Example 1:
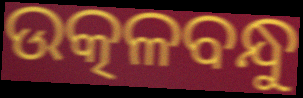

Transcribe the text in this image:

ଉତ୍କଳବନ୍ଧୁ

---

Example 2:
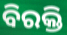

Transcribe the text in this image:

ବିରକ୍ତି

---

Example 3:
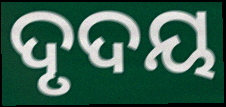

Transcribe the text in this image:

ଦୃଦୟ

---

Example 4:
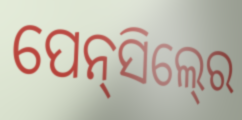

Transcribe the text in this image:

ପେନ୍‍ସିଲ୍‍ରେ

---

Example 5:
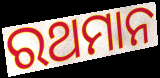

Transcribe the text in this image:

ରଥମାନ